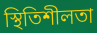
স্থিতিশীলতা